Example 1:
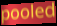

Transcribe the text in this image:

pooled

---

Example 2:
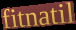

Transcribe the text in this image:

fitnatil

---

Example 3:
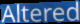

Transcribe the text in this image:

Altered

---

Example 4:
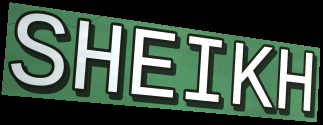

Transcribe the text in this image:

SHEIKH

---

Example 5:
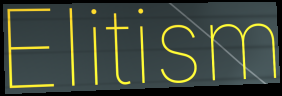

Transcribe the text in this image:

Elitism